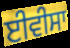
ਈਵੀਸਾ